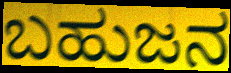
ಬಹುಜನ